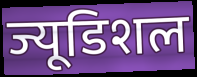
ज्यूडिशल